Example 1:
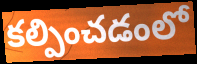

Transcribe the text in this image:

కల్పించడంలో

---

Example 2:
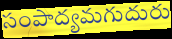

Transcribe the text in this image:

సంపాద్యమగుదురు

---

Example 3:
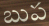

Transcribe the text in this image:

బుప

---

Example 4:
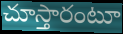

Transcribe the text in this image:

చూస్తారంటూ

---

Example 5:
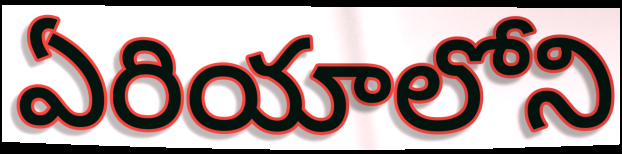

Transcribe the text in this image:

ఏరియాలోని